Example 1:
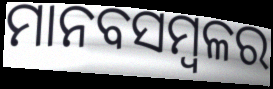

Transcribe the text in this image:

ମାନବସମ୍ବଳର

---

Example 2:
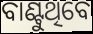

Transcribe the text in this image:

ବାଣ୍ଟୁଥିବେ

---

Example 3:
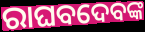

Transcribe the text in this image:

ରାଘବଦେବଙ୍କ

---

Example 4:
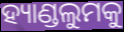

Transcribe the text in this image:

ହ୍ୟାଣ୍ଡଲୁମକୁ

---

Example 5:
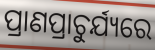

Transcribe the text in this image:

ପ୍ରାଣପ୍ରାଚୁର୍ଯ୍ୟରେ